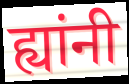
ह्यांनी